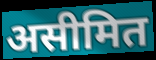
असीमित